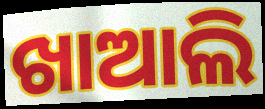
ଖାଆଲି